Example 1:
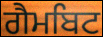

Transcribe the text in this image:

ਗੈਮਬਿਟ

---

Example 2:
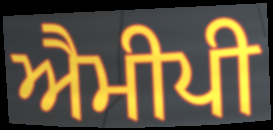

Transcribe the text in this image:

ਐਮੀਪੀ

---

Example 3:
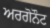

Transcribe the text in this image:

ਅਰਗੋਨੌਟ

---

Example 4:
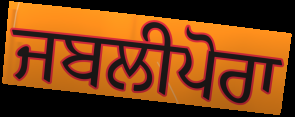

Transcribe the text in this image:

ਜਬਲੀਪੋਰਾ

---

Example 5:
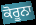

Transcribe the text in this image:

ਕੋਰੂਨਾ